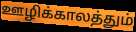
ஊழிக்காலத்தும்